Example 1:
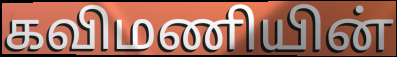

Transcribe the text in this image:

கவிமணியின்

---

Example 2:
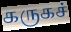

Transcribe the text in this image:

கருகச்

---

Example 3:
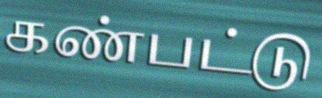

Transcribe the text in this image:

கண்பட்டு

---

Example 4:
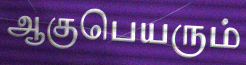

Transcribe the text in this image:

ஆகுபெயரும்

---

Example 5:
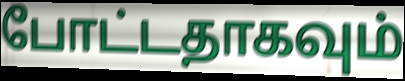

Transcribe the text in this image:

போட்டதாகவும்